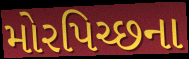
મોરપિચ્છના